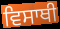
ਵਿਸਾਥੀ